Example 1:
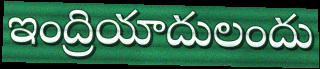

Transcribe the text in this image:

ఇంద్రియాదులందు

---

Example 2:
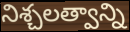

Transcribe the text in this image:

నిశ్చలత్వాన్ని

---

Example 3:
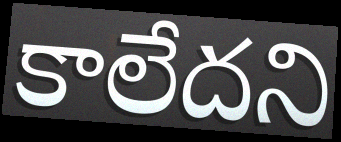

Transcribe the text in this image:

కాలేదని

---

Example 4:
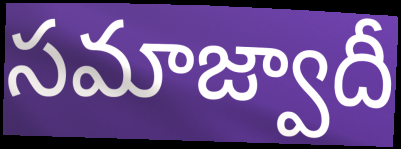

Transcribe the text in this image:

సమాజ్వాదీ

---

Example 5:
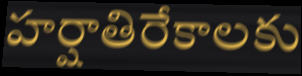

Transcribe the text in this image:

హర్షాతిరేకాలకు